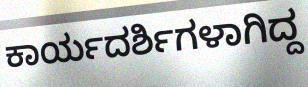
ಕಾರ್ಯದರ್ಶಿಗಳಾಗಿದ್ದ